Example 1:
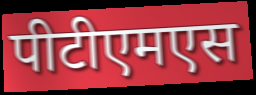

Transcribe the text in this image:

पीटीएमएस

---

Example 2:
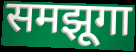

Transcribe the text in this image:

समझूगा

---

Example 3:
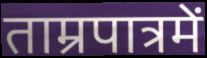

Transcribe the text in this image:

ताम्रपात्रमें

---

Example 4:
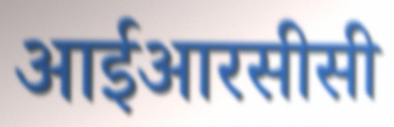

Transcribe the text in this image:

आईआरसीसी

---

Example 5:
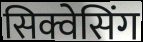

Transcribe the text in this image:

सिक्वेसिंग